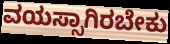
ವಯಸ್ಸಾಗಿರಬೇಕು